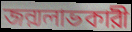
জন্মলাভকারী